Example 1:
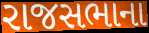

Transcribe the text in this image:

રાજસભાના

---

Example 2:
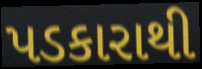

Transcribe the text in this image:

પડકારાથી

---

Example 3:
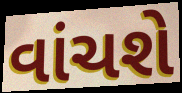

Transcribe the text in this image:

વાંચશે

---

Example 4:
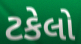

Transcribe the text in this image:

ટકેલો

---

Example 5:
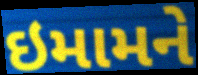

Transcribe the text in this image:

ઇમામને